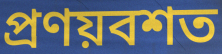
প্রণয়বশত